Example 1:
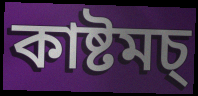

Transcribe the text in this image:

কাষ্টমচ্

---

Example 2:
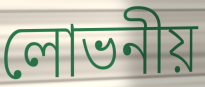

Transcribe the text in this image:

লোভনীয়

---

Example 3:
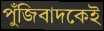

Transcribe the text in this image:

পুঁজিবাদকেই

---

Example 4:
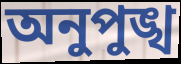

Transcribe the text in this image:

অনুপুঙ্খ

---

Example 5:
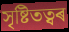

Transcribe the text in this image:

সৃষ্টিতত্বৰ